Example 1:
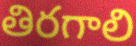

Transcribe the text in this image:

తిరగాలి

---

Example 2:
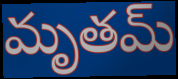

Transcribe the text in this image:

మృతమ్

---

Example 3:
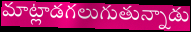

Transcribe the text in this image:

మాట్లాడగలుగుతున్నాడు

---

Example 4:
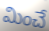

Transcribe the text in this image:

మించే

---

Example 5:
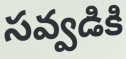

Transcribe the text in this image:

సవ్వడికి